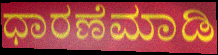
ಧಾರಣೆಮಾಡಿ